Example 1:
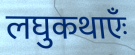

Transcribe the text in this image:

लघुकथाएँः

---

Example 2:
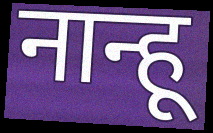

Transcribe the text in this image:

नान्हू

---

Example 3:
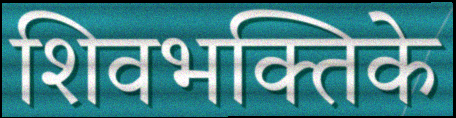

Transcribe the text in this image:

शिवभक्तिके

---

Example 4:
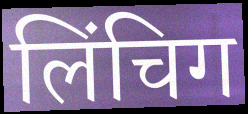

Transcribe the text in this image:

लिंचिग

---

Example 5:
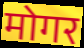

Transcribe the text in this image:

मोगर